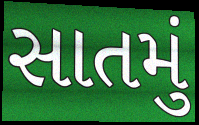
સાતમું